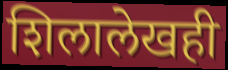
शिलालेखही